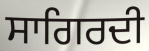
ਸਾਗਿਰਦੀ